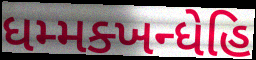
ધમ્મક્ખન્ધેહિ